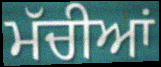
ਮੱਚੀਆਂ